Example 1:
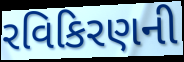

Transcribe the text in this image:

રવિકિરણની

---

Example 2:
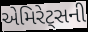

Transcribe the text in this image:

એમિરેટ્સની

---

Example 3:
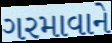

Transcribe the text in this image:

ગરમાવાને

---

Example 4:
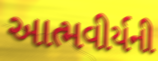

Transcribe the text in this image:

આત્મવીર્યની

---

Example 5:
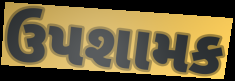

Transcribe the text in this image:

ઉપશામક